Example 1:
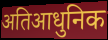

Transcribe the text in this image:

अतिआधुनिक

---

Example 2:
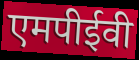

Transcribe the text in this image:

एमपीईवी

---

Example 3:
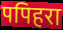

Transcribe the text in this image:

पपिहरा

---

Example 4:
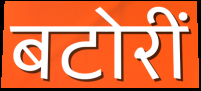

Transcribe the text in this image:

बटोरीं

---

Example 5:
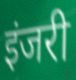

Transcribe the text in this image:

इंजरी